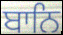
ਬਾਨਿ